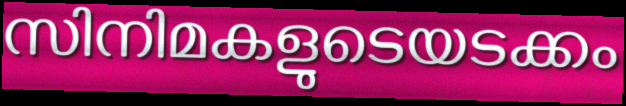
സിനിമകളുടെയടക്കം